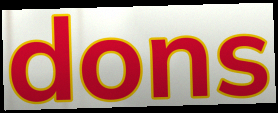
dons